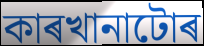
কাৰখানাটোৰ